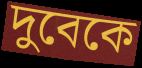
দুবেকে